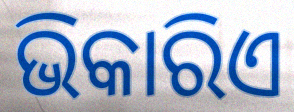
ଭିକାରିଏ